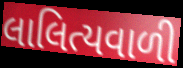
લાલિત્યવાળી